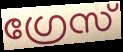
ഗ്രേസ്